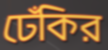
ঢেঁকির